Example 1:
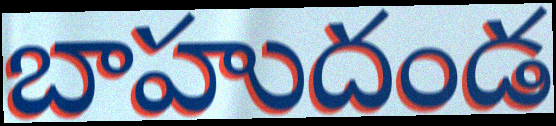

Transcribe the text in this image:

బాహుదండ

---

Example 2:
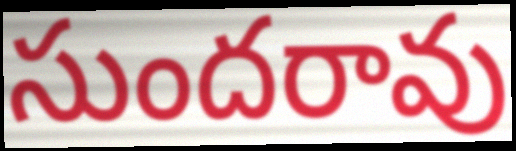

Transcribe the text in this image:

సుందరావు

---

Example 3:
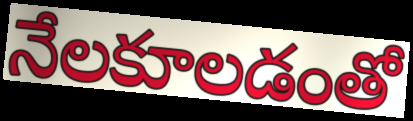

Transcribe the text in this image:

నేలకూలడంతో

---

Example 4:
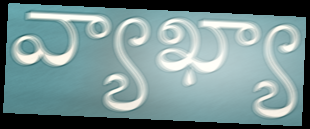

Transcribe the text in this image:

వ్యాఖ్యా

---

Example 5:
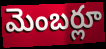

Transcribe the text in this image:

మెంబర్లూ